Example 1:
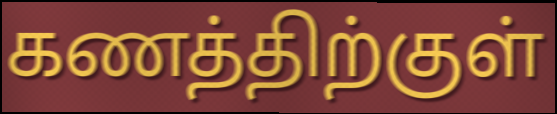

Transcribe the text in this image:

கணத்திற்குள்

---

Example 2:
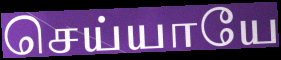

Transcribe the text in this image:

செய்யாயே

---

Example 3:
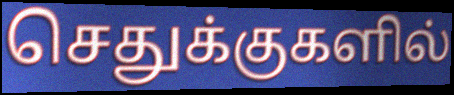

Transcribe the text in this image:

செதுக்குகளில்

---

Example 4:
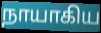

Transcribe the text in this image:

நாயாகிய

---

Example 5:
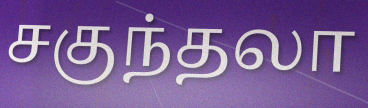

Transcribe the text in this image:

சகுந்தலா